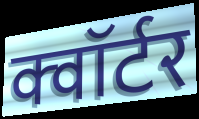
क्‍वॉर्टर